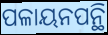
ପଳାୟନପନ୍ଥି